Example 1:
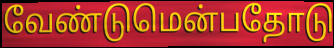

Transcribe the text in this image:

வேண்டுமென்பதோடு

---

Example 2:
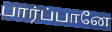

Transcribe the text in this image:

பார்ப்பானே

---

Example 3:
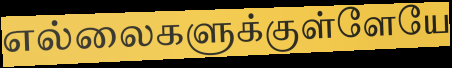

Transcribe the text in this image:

எல்லைகளுக்குள்ளேயே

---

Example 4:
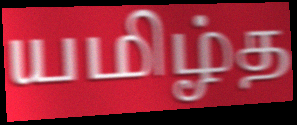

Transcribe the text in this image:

யமிழ்த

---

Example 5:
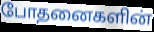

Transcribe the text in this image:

போதனைகளின்